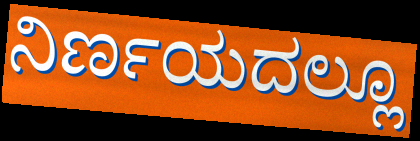
ನಿರ್ಣಯದಲ್ಲೂ